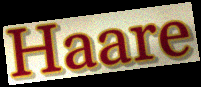
Haare